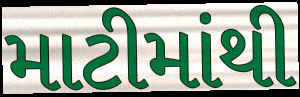
માટીમાંથી